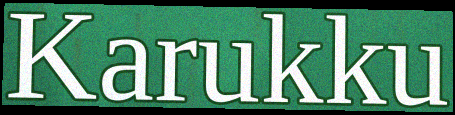
Karukku